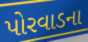
પોરવાડના